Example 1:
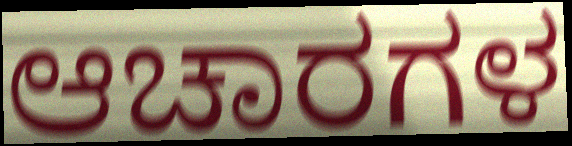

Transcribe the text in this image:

ಆಚಾರಗಳ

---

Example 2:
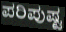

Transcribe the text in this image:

ಪರಿಪುಷ್ಟ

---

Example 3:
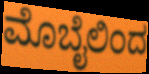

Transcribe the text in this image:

ಮೊಬೈಲಿಂದ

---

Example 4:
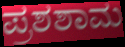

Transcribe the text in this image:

ಪ್ರಶಶಾಮ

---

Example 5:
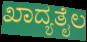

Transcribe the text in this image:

ಖಾದ್ಯತೈಲ